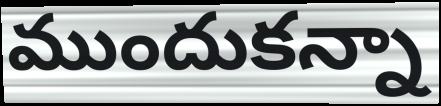
ముందుకన్నా